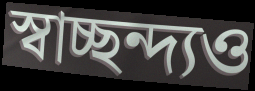
স্বাচ্ছন্দ্যও